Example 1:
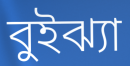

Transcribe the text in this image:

বুইঝ্যা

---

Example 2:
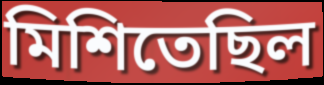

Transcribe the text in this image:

মিশিতেছিল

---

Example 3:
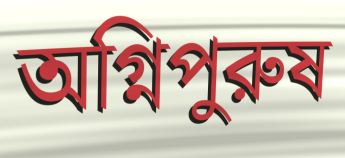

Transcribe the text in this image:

অগ্নিপুরুষ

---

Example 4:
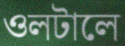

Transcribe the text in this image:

ওলটালে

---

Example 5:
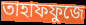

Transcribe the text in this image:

তাহাফফুজে